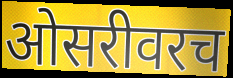
ओसरीवरच